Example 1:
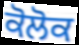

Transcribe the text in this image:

ਕੋਲੋਕ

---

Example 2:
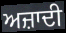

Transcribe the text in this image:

ਅਜ਼ਾਦੀ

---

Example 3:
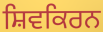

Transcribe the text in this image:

ਸ਼ਿਵਕਿਰਨ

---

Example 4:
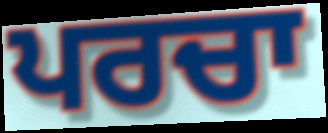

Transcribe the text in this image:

ਪਰਚਾ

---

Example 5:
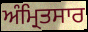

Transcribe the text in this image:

ਅੰਮ੍ਰਿਤਸਾਰ